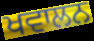
ਖਵਾਲਨ